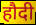
हौदी